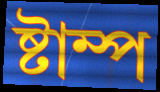
ষ্টাম্প